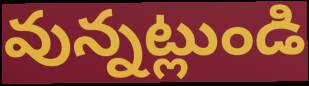
వున్నట్లుండి